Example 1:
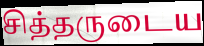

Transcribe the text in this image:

சித்தருடைய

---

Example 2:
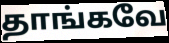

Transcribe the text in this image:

தாங்கவே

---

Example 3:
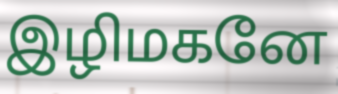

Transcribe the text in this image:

இழிமகனே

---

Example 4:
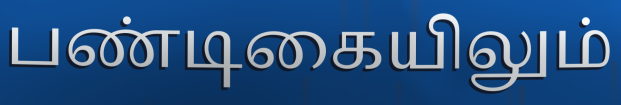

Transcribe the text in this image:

பண்டிகையிலும்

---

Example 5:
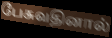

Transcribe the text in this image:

பேசுவதினால்